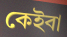
কেইবা